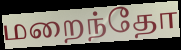
மறைந்தோ